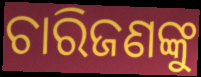
ଚାରିଜଣଙ୍କୁ